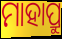
ମାହାପ୍ରୁ